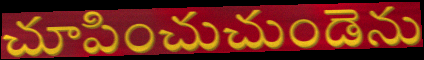
చూపించుచుండెను